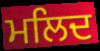
ਮਲਿਦ